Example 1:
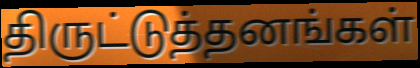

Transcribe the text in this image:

திருட்டுத்தனங்கள்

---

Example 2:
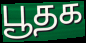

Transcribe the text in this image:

பூதக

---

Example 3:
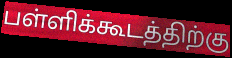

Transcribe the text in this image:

பள்ளிக்கூடத்திற்கு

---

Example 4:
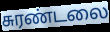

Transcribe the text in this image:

சுரண்டலை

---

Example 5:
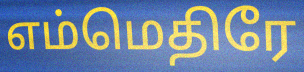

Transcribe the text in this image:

எம்மெதிரே